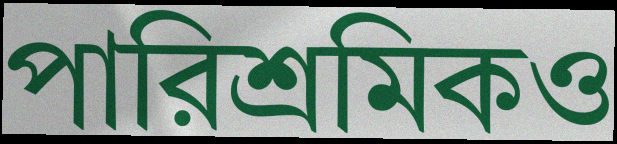
পারিশ্রমিকও